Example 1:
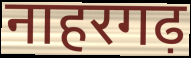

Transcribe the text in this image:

नाहरगढ़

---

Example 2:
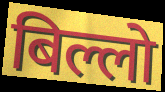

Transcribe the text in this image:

बिल्लो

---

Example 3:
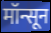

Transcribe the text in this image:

मॉन्सून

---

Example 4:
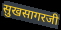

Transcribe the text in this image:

सुखसागरजी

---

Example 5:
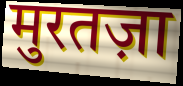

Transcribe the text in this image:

मुरतज़ा